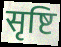
सृष्टि